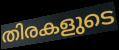
തിരകളുടെ